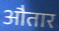
औतार